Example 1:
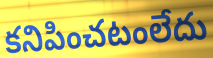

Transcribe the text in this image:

కనిపించటంలేదు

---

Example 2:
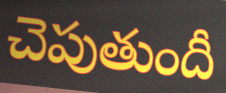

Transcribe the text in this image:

చెపుతుందీ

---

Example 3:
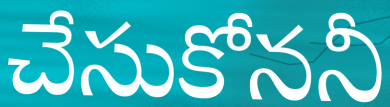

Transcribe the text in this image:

చేసుకోననీ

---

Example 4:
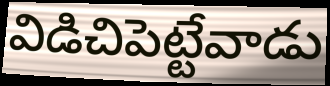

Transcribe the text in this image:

విడిచిపెట్టేవాడు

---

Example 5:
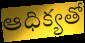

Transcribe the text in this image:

ఆధిక్యతో